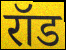
रॉड